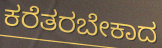
ಕರೆತರಬೇಕಾದ